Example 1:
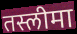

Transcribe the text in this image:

तस्लीमा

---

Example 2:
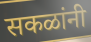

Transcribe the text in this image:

सकळांनी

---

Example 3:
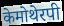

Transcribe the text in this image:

केमोथेरपी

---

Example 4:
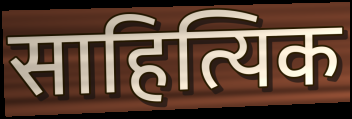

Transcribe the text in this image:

साहित्यिक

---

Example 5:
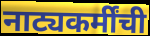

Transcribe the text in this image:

नाट्यकर्मींची